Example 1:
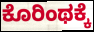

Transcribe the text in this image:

ಕೊರಿಂಥಕ್ಕೆ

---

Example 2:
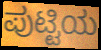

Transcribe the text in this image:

ಪುಟ್ಟಿಯ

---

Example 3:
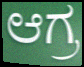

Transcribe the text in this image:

ಆಗ್ರ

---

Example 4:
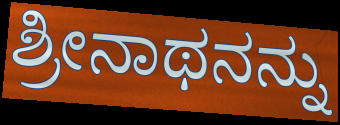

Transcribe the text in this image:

ಶ್ರೀನಾಥನನ್ನು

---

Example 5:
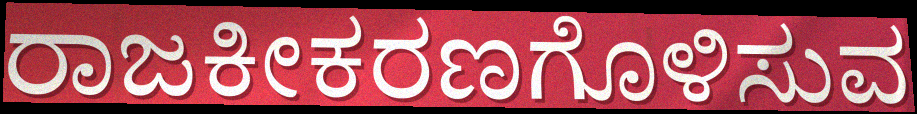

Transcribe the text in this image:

ರಾಜಕೀಕರಣಗೊಳಿಸುವ